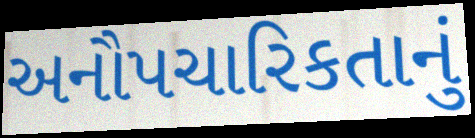
અનૌપચારિકતાનું